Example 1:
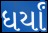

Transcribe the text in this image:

ધર્યાં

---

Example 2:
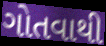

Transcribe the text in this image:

ગોતવાથી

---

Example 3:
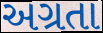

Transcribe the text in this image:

અગ્રતા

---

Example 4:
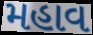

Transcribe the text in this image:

મહાવ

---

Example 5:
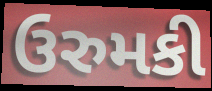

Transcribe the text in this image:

ઉરુમકી